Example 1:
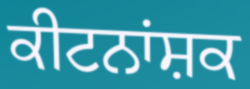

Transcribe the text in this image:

ਕੀਟਨਾਂਸ਼ਕ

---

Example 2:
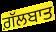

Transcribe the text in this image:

ਗ਼ੱਲਬਾਤ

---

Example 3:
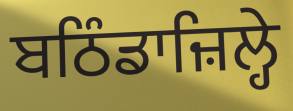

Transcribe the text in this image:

ਬਠਿੰਡਾਜ਼ਿਲ੍ਹੇ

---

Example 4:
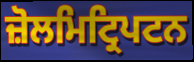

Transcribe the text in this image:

ਜ਼ੋਲਮਿਟ੍ਰਿਪਟਨ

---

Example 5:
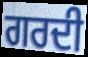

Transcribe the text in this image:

ਗਰਦੀ